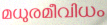
മധുരമീവിധം